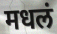
मधलं